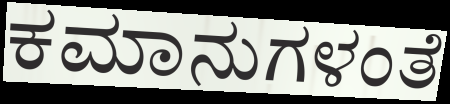
ಕಮಾನುಗಳಂತೆ